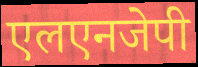
एलएनजेपी